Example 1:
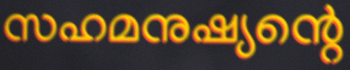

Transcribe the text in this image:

സഹമനുഷ്യന്റെ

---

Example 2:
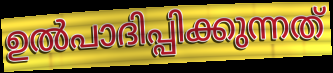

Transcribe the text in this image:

ഉൽപാദിപ്പിക്കുന്നത്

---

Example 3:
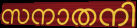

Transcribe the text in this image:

സനാതനി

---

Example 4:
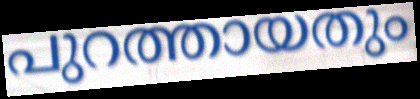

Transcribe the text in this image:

പുറത്തായതും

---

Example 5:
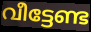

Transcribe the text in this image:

വീട്ടേണ്ട